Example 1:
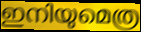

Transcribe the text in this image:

ഇനിയുമെത്ര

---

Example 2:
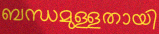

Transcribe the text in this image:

ബന്ധമുള്ളതായി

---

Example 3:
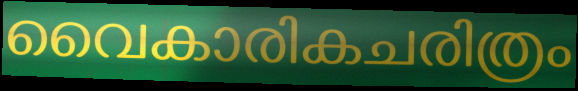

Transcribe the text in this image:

വൈകാരികചരിത്രം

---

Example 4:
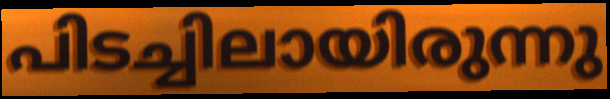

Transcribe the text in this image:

പിടച്ചിലായിരുന്നു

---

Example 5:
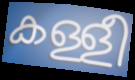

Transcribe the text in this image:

കള്ളീ